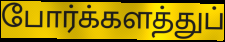
போர்க்களத்துப்